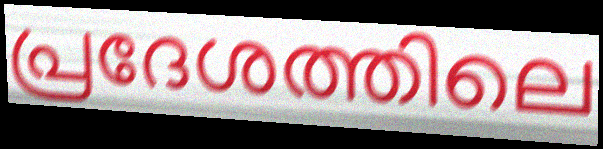
പ്രദേശത്തിലെ